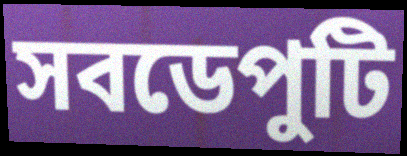
সবডেপুটি